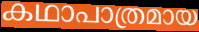
കഥാപാത്രമായ